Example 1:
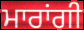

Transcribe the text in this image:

ਮਾਰਾਂਗੀ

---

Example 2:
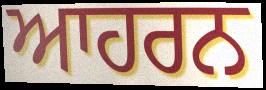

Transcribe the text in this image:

ਆਹਰਨ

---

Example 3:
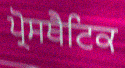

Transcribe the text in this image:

ਪ੍ਰੋਸਥੈਟਿਕ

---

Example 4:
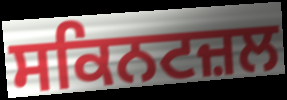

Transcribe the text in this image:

ਸਕਿਨਟਜ਼ਲ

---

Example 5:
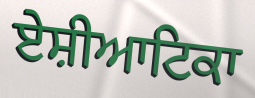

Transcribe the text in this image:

ਏਸ਼ੀਆਟਿਕਾ